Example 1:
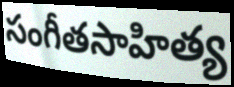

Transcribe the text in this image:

సంగీతసాహిత్య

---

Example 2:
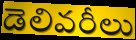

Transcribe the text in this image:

డెలివరీలు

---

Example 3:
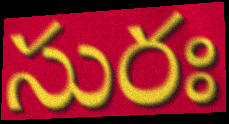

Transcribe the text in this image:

సురః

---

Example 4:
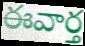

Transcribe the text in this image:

ఈవార్త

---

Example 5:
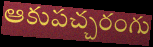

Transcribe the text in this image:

ఆకుపచ్చరంగు